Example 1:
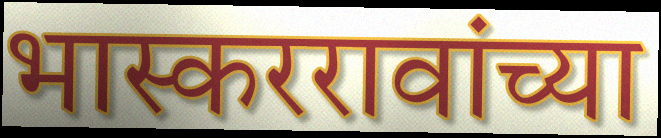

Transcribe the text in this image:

भास्कररावांच्या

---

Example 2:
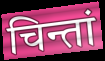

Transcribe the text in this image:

चिन्तां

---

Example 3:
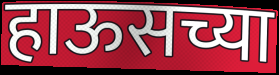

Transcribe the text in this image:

हाऊसच्या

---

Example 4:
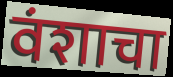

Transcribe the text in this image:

वंशाचा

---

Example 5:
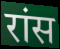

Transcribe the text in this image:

रांस